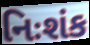
નિઃશંક